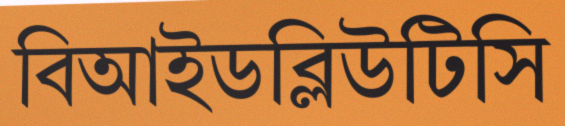
বিআইডব্লিউটিসি